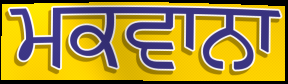
ਮਕਵਾਨਾ